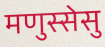
मणुस्सेसु